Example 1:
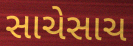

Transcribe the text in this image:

સાચેસાચ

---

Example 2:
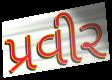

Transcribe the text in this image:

પ્રવીર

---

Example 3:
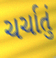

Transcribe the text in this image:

ચર્ચાતું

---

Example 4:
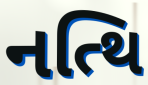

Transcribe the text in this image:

નત્થિ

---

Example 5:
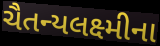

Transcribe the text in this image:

ચૈતન્યલક્ષ્મીના